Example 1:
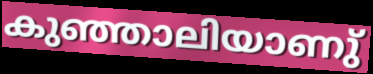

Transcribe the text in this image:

കുഞ്ഞാലിയാണു്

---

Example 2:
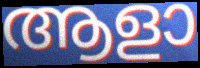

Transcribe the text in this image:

ആളാ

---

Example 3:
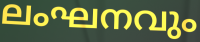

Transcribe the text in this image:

ലംഘനവും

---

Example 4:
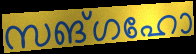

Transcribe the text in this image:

സങ്ഗഹോ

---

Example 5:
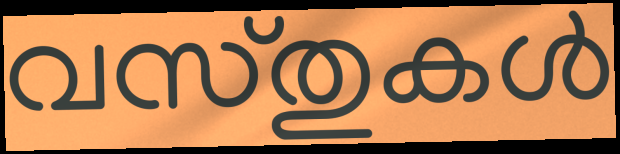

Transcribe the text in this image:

വസ്തുകൾ